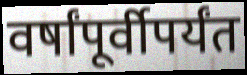
वर्षांपूर्वीपर्यंत